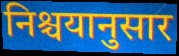
निश्चयानुसार